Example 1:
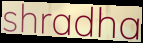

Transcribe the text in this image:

shradha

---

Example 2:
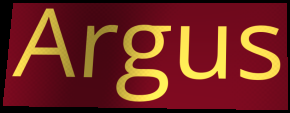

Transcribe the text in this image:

Argus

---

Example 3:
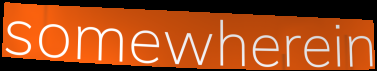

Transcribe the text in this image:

somewherein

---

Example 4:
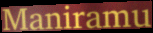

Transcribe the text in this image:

Maniramu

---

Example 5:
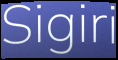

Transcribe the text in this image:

Sigiri